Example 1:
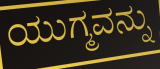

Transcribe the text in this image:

ಯುಗ್ಮವನ್ನು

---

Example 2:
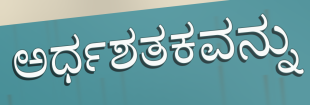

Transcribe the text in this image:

ಅರ್ಧಶತಕವನ್ನು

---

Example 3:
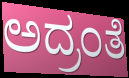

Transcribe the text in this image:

ಅದ್ರಂತೆ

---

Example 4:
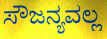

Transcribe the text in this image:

ಸೌಜನ್ಯವಲ್ಲ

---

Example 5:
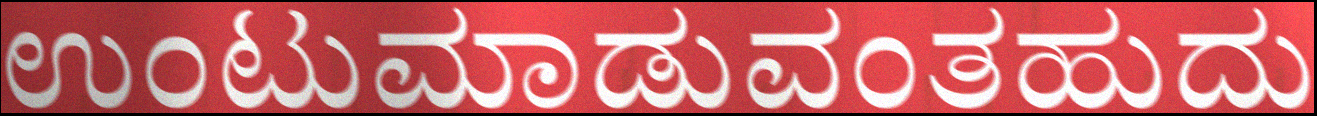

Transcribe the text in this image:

ಉಂಟುಮಾಡುವಂತಹುದು